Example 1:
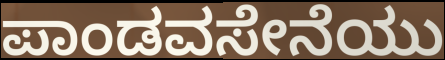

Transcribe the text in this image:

ಪಾಂಡವಸೇನೆಯು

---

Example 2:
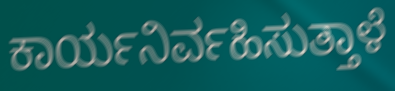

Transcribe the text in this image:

ಕಾರ್ಯನಿರ್ವಹಿಸುತ್ತಾಳೆ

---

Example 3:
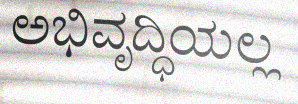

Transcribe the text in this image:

ಅಭಿವೃದ್ಧಿಯಲ್ಲ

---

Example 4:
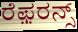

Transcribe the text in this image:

ರೆಫ಼ರನ್ಸ್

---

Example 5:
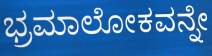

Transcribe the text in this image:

ಭ್ರಮಾಲೋಕವನ್ನೇ